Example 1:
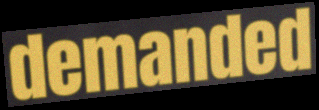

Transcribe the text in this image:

demanded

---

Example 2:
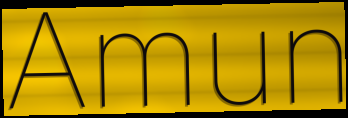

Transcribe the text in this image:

Amun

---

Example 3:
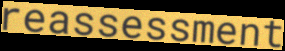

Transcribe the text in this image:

reassessment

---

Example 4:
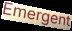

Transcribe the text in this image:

Emergent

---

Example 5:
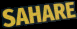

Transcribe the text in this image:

SAHARE